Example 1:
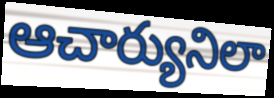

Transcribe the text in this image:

ఆచార్యునిలా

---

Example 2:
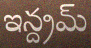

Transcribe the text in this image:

ఇన్ద్రమ్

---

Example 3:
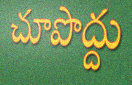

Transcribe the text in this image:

చూపొద్దు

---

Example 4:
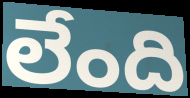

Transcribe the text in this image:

లేంది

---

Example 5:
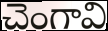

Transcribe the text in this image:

చెంగావి